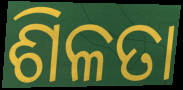
ଶିଳତା